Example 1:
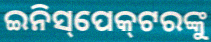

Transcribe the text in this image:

ଇନିସ୍‌ପେକ୍‍ଟରଙ୍କୁ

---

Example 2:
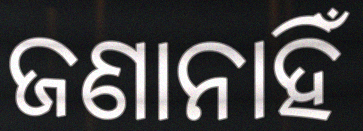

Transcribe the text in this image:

ଜଣାନାହିଁ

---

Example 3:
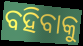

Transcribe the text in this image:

ବହିବାକୁ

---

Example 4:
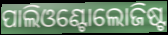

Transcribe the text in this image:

ପାଲିଓଣ୍ଟୋଲୋଜିଷ୍ଟ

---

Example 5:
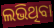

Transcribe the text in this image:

ଲଭିଥିବା